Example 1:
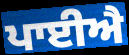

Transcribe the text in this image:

ਪਾਈਐ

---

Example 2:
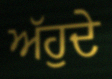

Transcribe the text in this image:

ਅੱਹੁਦੇ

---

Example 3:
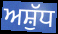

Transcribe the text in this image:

ਅਸ਼ੁੱਧ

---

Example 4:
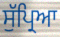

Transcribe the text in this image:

ਸੁੱਪ੍ਰਿਆ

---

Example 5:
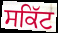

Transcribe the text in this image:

ਸਕਿੱਟ